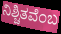
ನಿಶ್ಚಿತವೆಂಬ